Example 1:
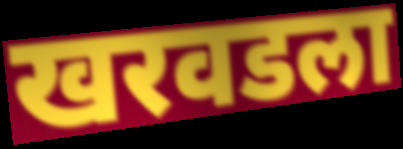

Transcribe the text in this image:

खरवडला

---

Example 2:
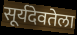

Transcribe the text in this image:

सूर्यदेवतेला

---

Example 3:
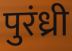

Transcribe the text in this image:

पुरंध्री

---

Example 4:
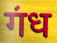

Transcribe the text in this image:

गंध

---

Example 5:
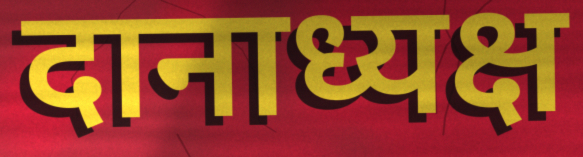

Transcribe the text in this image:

दानाध्यक्ष